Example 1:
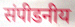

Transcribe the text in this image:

संपीडनीय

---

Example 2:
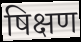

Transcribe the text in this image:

षिक्षण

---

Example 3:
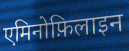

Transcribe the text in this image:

एमिनोफ़िलाइन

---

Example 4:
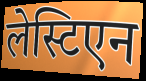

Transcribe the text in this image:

लेस्टिएन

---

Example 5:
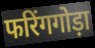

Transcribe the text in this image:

फरिंगगोड़ा